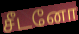
சீடனோ